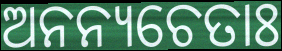
ଅନନ୍ୟଚେତାଃ